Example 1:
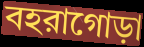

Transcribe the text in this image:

বহরাগোড়া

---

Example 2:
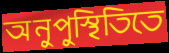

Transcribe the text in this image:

অনুপুস্থিতিতে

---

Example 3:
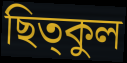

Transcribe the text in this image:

ছিত্কুল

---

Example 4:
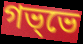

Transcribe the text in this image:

গভ্ভে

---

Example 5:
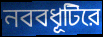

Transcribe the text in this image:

নববধূটিরে